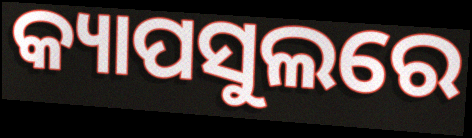
କ୍ୟାପସୁଲରେ